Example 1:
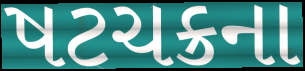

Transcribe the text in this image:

ષટચક્રના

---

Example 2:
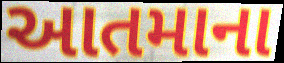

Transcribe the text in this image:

આતમાના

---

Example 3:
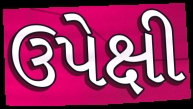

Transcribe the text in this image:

ઉપેક્ષી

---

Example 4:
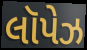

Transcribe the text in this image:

લૉપેઝ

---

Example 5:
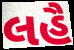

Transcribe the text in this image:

લહૈ